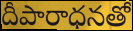
దీపారాధనతో